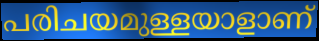
പരിചയമുള്ളയാളാണ്